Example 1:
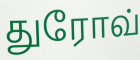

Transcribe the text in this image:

துரோவ்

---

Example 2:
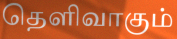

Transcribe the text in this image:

தெளிவாகும்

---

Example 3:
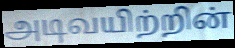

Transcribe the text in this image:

அடிவயிற்றின்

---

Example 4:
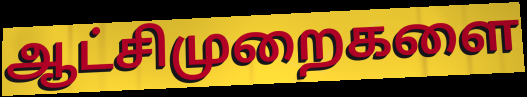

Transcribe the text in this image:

ஆட்சிமுறைகளை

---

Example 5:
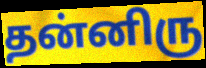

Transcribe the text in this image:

தன்னிரு